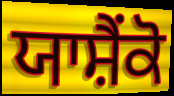
ਯਾਸ਼ੈਂਕੋ